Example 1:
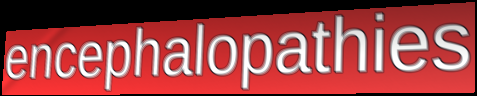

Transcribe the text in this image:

encephalopathies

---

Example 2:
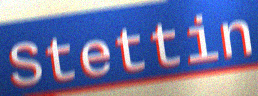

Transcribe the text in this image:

Stettin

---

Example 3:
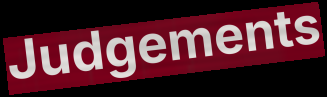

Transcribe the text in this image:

Judgements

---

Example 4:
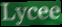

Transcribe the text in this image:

Lycee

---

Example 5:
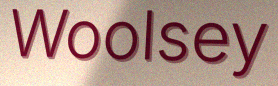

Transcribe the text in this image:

Woolsey